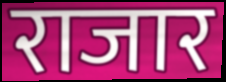
राजार